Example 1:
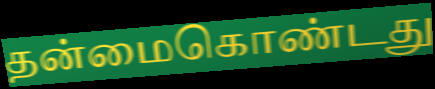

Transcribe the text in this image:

தன்மைகொண்டது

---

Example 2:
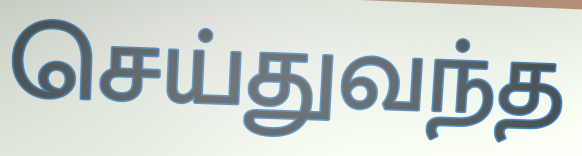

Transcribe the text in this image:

செய்துவந்த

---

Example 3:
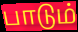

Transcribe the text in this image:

பாடும்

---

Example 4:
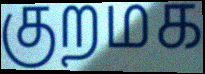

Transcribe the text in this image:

குறமக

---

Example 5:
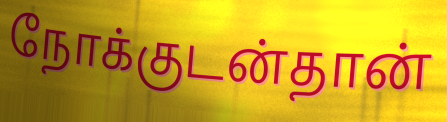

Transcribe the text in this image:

நோக்குடன்தான்